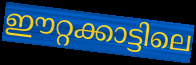
ഈറ്റക്കാട്ടിലെ